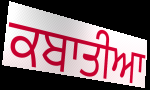
ਕਬਾਤੀਆ